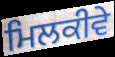
ਮਿਲਕੀਵੇ